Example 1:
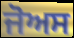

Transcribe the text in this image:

ਜੋਅਸ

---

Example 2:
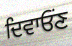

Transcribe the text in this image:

ਦਿਵਾਓੰਣ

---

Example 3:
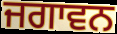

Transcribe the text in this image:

ਜਗਾਵਨ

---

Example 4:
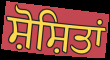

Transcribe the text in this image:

ਸ਼ੋਸ਼ਿਤਾਂ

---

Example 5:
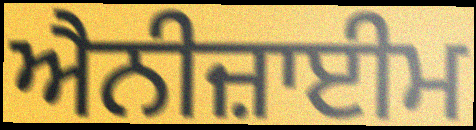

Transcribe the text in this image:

ਐਨੀਜ਼ਾਈਮ